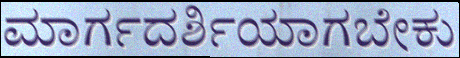
ಮಾರ್ಗದರ್ಶಿಯಾಗಬೇಕು